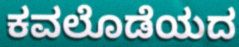
ಕವಲೊಡೆಯದ